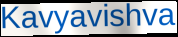
Kavyavishva